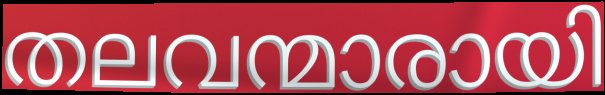
തലവന്മാരായി